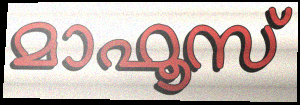
മാഫൂസ്